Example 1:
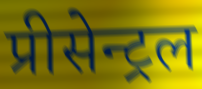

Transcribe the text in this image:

प्रीसेन्ट्रल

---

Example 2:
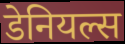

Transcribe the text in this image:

डेनियल्स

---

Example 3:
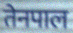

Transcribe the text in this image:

तेनपाल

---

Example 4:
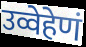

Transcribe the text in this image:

उव्वेहेणं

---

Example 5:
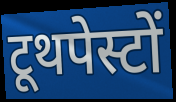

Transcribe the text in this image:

टूथपेस्टों